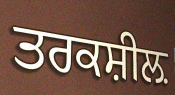
ਤਰਕਸ਼ੀਲ਼